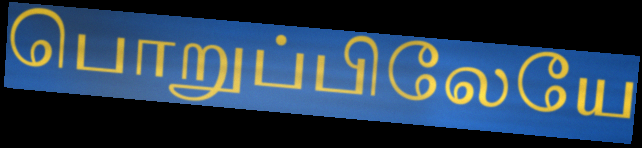
பொறுப்பிலேயே